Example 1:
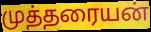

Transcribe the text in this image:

முத்தரையன்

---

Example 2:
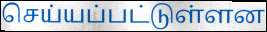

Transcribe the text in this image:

செய்யப்பட்டுள்ளன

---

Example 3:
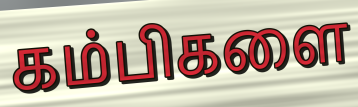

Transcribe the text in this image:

கம்பிகளை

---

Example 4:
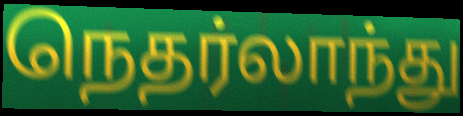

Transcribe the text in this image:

நெதர்லாந்து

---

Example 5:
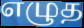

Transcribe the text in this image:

எழுத